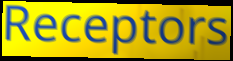
Receptors